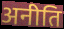
अनीति